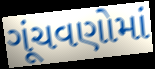
ગૂંચવણોમાં